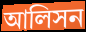
আলিসন